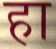
हा